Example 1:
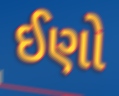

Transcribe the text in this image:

ઈણો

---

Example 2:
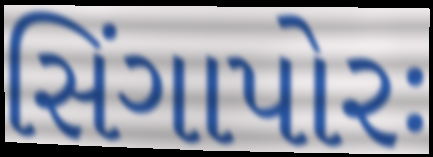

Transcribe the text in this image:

સિંગાપોરઃ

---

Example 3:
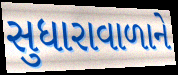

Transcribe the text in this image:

સુધારાવાળાને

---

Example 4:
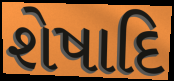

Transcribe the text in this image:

શેષાદિ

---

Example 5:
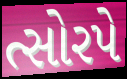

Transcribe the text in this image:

ત્સોરપે